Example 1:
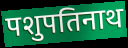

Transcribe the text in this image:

पशुपतिनाथ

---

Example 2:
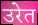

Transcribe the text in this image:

उरेत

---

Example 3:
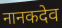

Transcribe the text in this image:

नानकदेव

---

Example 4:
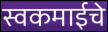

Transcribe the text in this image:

स्वकमाईचे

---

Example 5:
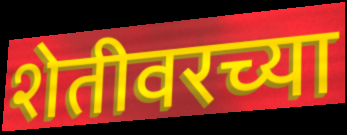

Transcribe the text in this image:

शेतीवरच्या